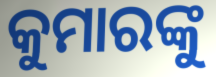
କୁମାରଙ୍କୁ